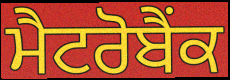
ਮੈਟਰੋਬੈਂਕ